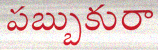
పబ్బుకురా